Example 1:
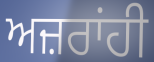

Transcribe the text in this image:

ਅਜ਼ਰਾਂਹੀ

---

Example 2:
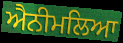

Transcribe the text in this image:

ਐਨੀਮਲਿਆ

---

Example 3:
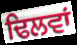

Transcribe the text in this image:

ਢਿਲਵਾਂ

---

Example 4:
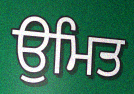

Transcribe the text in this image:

ਉਮਿਤ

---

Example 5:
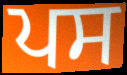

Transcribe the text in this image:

ਪਸ